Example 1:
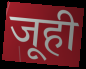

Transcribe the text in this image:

जूही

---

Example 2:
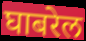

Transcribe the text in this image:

घाबरेल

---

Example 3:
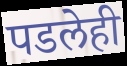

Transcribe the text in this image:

पडलेही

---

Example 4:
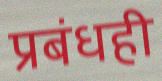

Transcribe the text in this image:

प्रबंधही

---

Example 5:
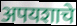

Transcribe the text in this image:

अपयशाचे